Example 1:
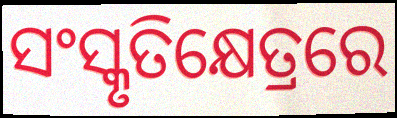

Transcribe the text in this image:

ସଂସ୍କୃତିକ୍ଷେତ୍ରରେ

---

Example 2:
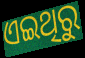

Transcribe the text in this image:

ଏଇଥିରୁ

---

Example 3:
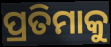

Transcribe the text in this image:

ପ୍ରତିମାକୁ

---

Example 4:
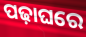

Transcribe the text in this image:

ପଢ଼ାଘରେ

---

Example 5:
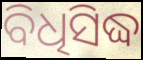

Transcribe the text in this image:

ବିଧିସିଦ୍ଧ